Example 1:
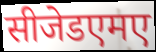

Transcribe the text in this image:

सीजेडएमए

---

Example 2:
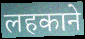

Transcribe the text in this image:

लहकाने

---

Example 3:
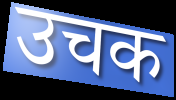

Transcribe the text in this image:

उचक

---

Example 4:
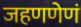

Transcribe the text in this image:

जहणणेणं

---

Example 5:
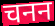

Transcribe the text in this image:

चनन